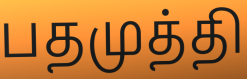
பதமுத்தி